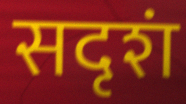
सदृशं